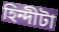
হিন্দীটা